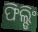
ଫିଲ୍ଡିଂ